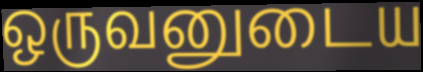
ஒருவனுடைய